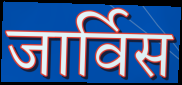
जार्विस